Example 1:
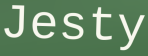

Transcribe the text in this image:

Jesty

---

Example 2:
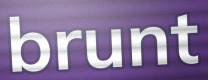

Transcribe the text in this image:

brunt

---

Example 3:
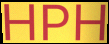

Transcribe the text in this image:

HPH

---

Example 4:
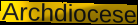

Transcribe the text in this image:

Archdiocese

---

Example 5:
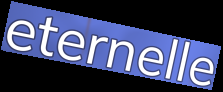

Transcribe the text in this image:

eternelle